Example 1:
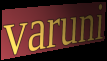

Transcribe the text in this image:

varuni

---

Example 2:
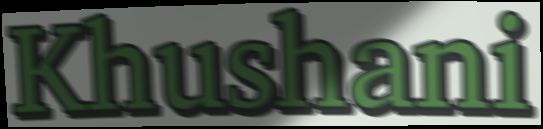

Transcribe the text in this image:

Khushani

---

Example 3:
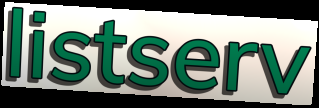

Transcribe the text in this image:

listserv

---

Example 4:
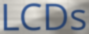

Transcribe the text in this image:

LCDs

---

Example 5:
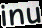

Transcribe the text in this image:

inu